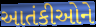
આતંકીઓને